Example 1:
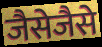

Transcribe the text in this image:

जैसेजैसे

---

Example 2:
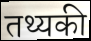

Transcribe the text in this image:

तथ्यकी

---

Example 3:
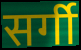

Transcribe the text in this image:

सर्गी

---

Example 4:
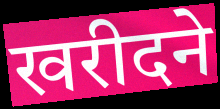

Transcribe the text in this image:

खरीदने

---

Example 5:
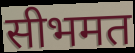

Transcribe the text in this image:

सीभमत